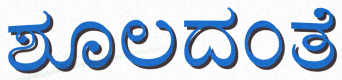
ಶೂಲದಂತೆ